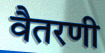
वैतरणी